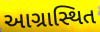
આગ્રાસ્થિત